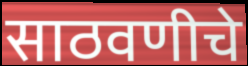
साठवणीचे